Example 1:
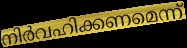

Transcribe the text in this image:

നിർവഹിക്കണമെന്ന്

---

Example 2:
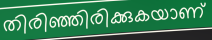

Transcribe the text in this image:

തിരിഞ്ഞിരിക്കുകയാണ്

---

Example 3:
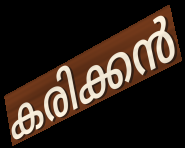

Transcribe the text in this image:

കരിക്കൻ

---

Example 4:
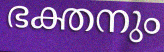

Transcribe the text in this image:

ഭക്തനും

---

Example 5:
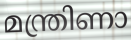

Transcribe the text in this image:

മന്ത്രിണാ